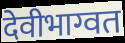
देवीभाग्वत